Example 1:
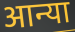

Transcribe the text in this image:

आन्या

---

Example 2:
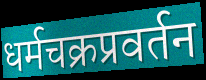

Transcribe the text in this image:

धर्मचक्रप्रवर्तन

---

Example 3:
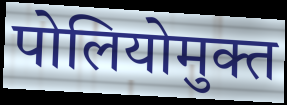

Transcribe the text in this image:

पोलियोमुक्त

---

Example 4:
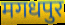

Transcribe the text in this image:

मगधपुर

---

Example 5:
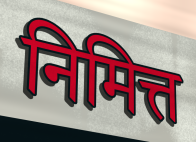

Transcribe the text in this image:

निमित्त